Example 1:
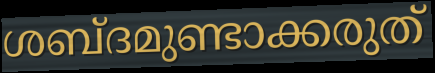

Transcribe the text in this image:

ശബ്ദമുണ്ടാക്കരുത്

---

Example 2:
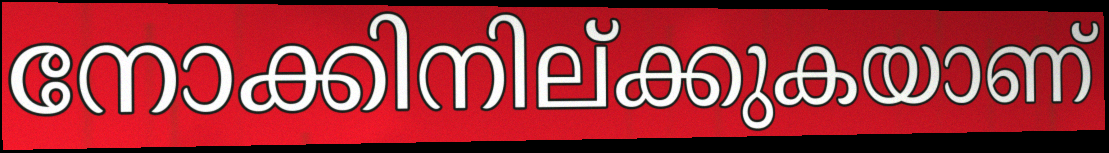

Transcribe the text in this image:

നോക്കിനില്ക്കുകയാണ്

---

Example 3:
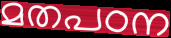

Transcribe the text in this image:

മതപഠന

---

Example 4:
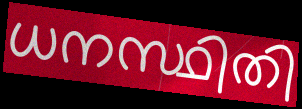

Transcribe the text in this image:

ധനസ്ഥിതി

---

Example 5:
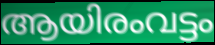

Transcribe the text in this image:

ആയിരംവട്ടം